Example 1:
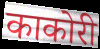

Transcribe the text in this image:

काकोरी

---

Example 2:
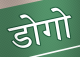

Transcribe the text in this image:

डोगो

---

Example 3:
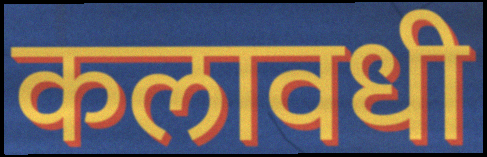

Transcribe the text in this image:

कलावधी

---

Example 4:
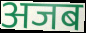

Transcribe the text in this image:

अजब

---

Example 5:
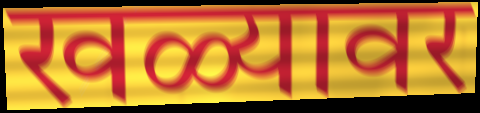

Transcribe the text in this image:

खळ्यावर